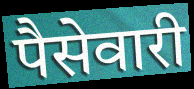
पैसेवारी